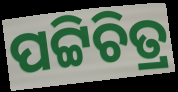
ପଟ୍ଟିଚିତ୍ର